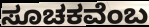
ಸೂಚಕವೆಂಬ